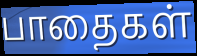
பாதைகள்